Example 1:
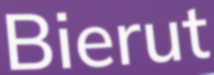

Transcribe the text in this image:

Bierut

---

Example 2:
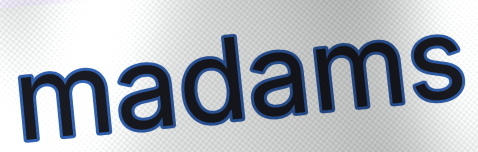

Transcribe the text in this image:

madams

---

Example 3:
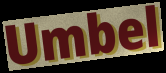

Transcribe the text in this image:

Umbel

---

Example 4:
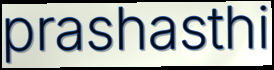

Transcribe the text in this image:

prashasthi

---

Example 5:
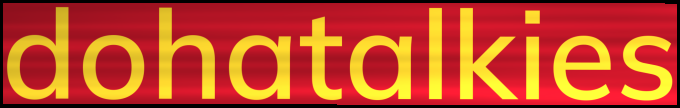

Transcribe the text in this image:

dohatalkies